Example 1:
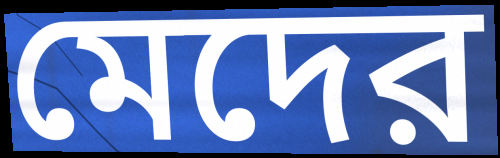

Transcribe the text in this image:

মেদের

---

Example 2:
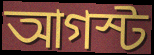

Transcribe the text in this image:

আগস্ট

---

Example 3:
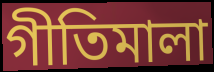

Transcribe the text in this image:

গীতিমালা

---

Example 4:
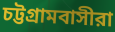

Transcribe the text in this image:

চট্টগ্রামবাসীরা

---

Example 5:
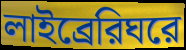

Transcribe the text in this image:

লাইব্রেরিঘরে